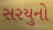
સરયુનો